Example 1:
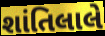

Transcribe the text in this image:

શાંતિલાલે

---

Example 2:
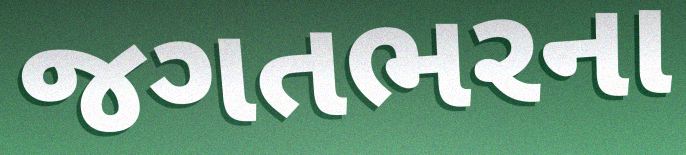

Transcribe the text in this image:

જગતભરના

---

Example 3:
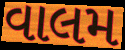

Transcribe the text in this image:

વાલમ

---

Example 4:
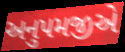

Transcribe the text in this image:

અનુપમજીએ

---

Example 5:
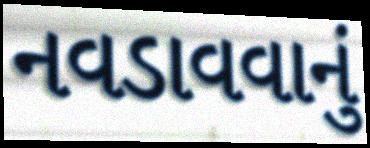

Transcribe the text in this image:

નવડાવવાનું